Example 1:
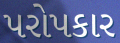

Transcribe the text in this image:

પરોપકાર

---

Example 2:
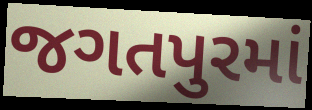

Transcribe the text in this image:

જગતપુરમાં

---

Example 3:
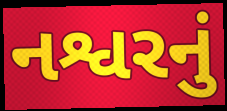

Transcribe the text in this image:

નશ્વરનું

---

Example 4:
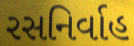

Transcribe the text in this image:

રસનિર્વાહ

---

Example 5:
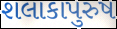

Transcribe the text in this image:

શલાકાપુરુષ